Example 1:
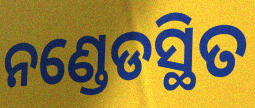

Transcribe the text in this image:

ନଣ୍ଡେଡସ୍ଥିତ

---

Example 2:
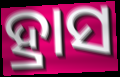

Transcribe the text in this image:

ହ୍ରାସ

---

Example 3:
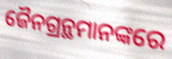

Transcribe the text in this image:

ଜୈନଗ୍ରନ୍ଥମାନଙ୍କରେ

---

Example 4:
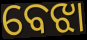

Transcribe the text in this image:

ବେଝା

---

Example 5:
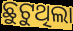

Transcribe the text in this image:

ଛୁଟୁଥିଲା